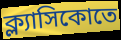
ক্ল্যাসিকোতে